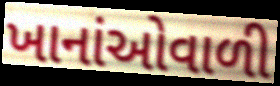
ખાનાંઓવાળી